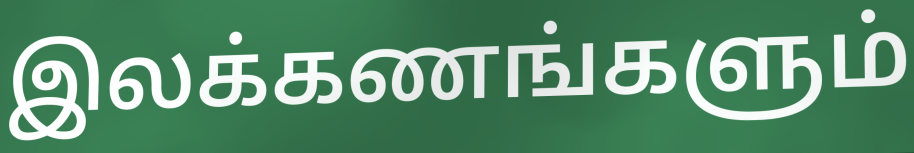
இலக்கணங்களும்